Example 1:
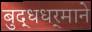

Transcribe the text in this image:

बुद्धधर्माने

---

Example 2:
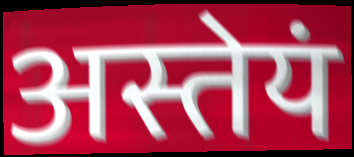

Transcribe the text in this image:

अस्तेयं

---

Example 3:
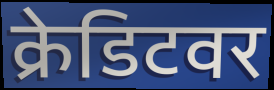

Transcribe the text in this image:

क्रेडिटवर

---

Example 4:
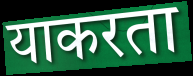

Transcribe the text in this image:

याकरता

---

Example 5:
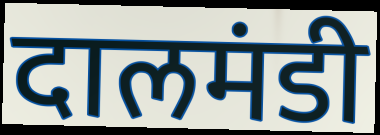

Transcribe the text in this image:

दालमंडी